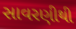
સાવરણીથી